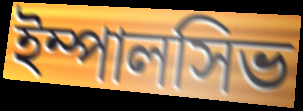
ইম্পালসিভ